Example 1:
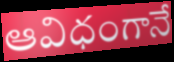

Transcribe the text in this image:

ఆవిధంగానే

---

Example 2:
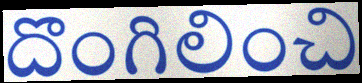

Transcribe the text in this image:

దొంగిలించి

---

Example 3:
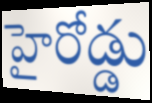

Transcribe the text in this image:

హైరోడ్డు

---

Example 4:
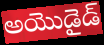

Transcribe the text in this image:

అయొడైడ్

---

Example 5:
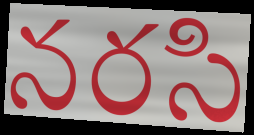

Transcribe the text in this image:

నరసి